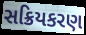
સક્રિયકરણ